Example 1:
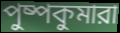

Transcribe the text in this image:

পুষ্পকুমারা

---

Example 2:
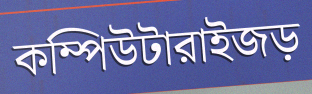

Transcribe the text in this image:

কম্পিউটারাইজড়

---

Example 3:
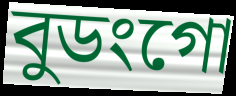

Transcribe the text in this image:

বুডংগো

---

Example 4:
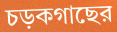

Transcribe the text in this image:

চড়কগাছের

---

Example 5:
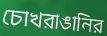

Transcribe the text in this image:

চোখরাঙানির